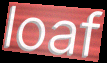
loaf